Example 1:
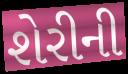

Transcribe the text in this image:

શેરીની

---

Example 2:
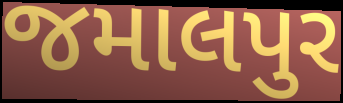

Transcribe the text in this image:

જમાલપુર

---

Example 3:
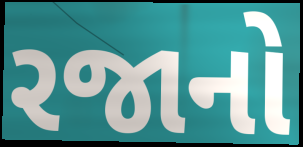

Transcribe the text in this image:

રજાનો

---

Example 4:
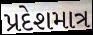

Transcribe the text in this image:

પ્રદેશમાત્ર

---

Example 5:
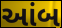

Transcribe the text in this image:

આંબ